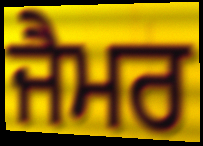
ਜੈਮਰ